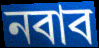
নবাব